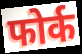
फोर्क